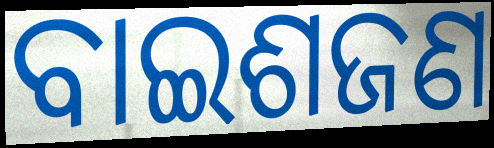
ବାଇଶଜଣ